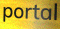
portal